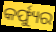
କର୍ଫ୍ୟୁର